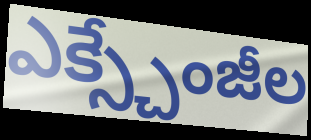
ఎక్స్చేంజీల